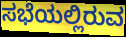
ಸಭೆಯಲ್ಲಿರುವ